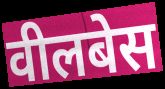
वीलबेस